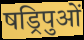
षड्रिपुओं